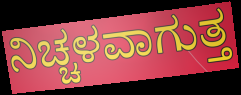
ನಿಚ್ಚಳವಾಗುತ್ತ